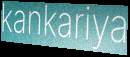
kankariya